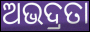
ଅଭଦ୍ରତା